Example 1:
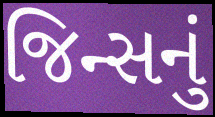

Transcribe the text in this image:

જિન્સનું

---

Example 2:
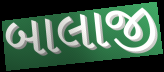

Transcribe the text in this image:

બાલાજી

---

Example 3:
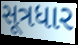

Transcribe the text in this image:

સૂત્રધાર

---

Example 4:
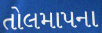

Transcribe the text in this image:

તોલમાપના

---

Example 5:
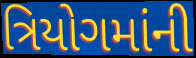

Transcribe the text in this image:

ત્રિયોગમાંની